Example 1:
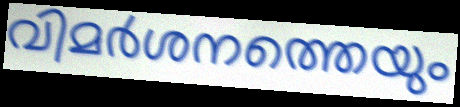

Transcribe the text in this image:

വിമർശനത്തെയും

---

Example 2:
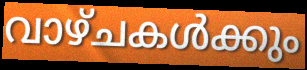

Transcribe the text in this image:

വാഴ്ചകൾക്കും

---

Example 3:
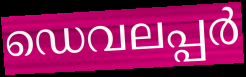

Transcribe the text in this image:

ഡെവലപ്പർ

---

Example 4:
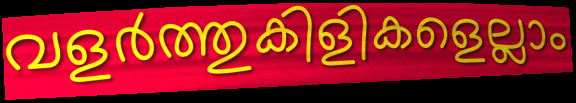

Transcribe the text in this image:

വളർത്തുകിളികളെല്ലാം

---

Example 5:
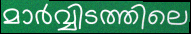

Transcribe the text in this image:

മാർവ്വിടത്തിലെ